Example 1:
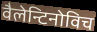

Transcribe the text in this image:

वैलेन्टिनोविच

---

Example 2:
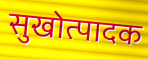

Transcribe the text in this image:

सुखोत्पादक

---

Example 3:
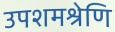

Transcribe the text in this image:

उपशमश्रेणि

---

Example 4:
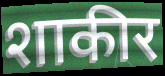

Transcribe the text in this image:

शाकीर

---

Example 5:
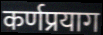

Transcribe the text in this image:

कर्णप्रयाग